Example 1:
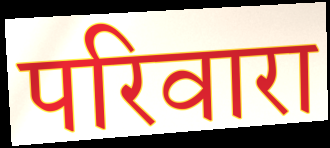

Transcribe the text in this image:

परिवारा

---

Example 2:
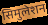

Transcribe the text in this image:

सिमुलेशन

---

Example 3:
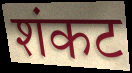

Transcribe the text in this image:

शंकट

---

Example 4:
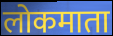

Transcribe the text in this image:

लोकमाता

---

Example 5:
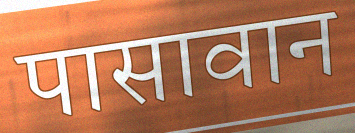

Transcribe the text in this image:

पासावान